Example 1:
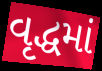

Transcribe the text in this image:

વૃદ્ધમાં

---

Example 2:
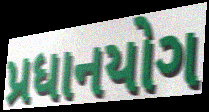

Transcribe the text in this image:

પ્રધાનયોગ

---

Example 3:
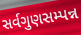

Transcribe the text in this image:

સર્વગુણસમ્પન્ન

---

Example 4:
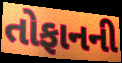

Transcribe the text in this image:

તોફાનની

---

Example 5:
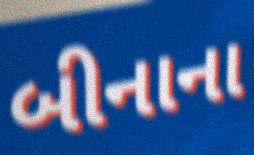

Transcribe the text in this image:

બીનાના